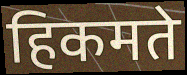
हिकमते